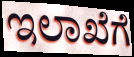
ಇಲಾಖೆಗೆ